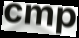
cmp